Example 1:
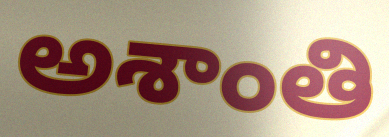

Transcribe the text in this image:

అశాంతి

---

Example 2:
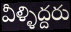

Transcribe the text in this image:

వీళ్ళిద్దరు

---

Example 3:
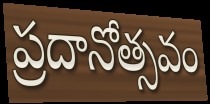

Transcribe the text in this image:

ప్రదానోత్సవం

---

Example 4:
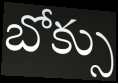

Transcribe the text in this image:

బోక్సు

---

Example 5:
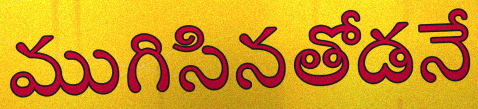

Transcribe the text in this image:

ముగిసినతోడనే